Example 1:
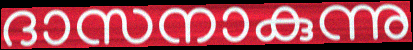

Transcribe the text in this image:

ദാസനാകുന്നു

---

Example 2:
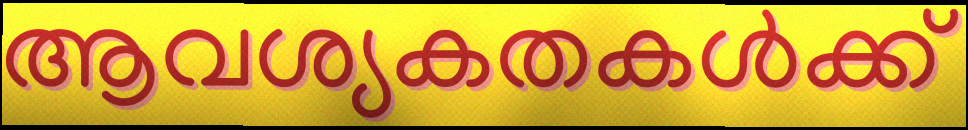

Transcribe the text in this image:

ആവശ്യകതകൾക്ക്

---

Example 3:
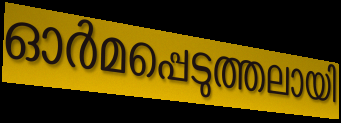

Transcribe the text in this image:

ഓർമപ്പെടുത്തലായി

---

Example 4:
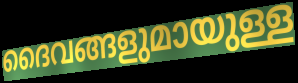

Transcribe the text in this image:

ദൈവങ്ങളുമായുള്ള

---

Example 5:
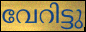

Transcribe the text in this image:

വേറിട്ടു